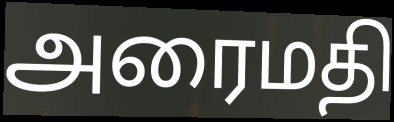
அரைமதி